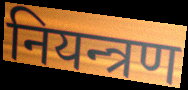
नियन्त्रण